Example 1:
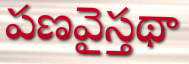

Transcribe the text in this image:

పణవైస్తథా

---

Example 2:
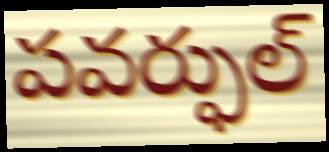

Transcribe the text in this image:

పవర్ఫుల్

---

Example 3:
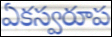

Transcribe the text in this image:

ఏకస్వరూప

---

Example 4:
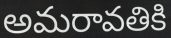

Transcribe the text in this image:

అమరావతికి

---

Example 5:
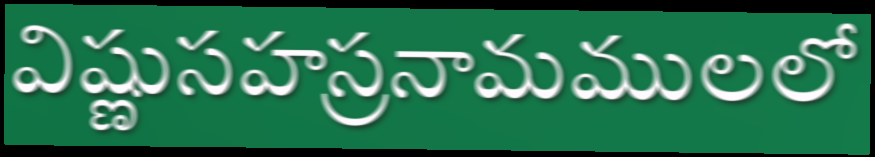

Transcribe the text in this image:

విష్ణుసహస్రనామములలో